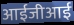
आईजीआई